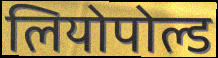
लियोपोल्ड